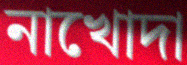
নাখোদা